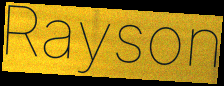
Rayson